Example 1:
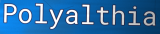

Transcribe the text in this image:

Polyalthia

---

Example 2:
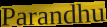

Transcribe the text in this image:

Parandhu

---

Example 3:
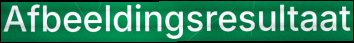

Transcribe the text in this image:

Afbeeldingsresultaat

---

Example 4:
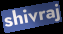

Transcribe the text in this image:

shivraj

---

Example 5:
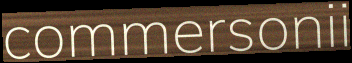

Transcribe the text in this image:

commersonii